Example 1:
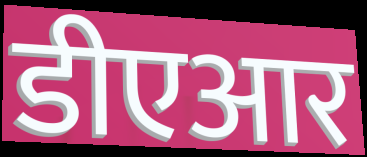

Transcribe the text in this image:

डीएआर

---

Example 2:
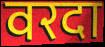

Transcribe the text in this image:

वरदा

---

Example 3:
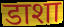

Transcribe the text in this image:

डाशा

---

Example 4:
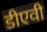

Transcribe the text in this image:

डीएवी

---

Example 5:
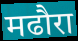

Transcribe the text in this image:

मढौरा